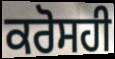
ਕਰੋਸਹੀ